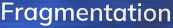
Fragmentation